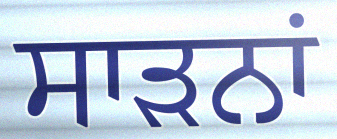
ਸਾੜਨਾਂ